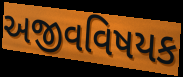
અજીવવિષયક